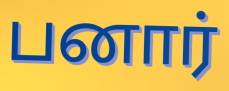
பனார்